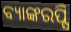
ବ୍ୟାଙ୍କରପ୍ସି